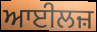
ਆਈਲਜ਼